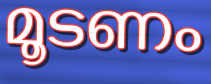
മൂടണം